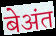
बेअंत